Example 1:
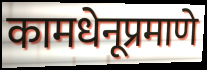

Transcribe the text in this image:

कामधेनूप्रमाणे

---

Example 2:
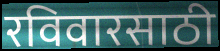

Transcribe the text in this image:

रविवारसाठी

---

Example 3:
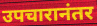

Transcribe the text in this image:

उपचारानंतर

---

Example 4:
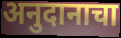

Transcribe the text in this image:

अनुदानाचा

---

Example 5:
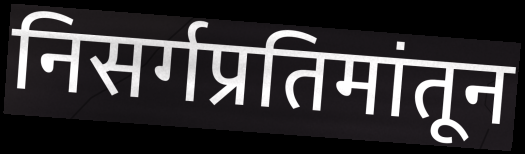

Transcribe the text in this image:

निसर्गप्रतिमांतून